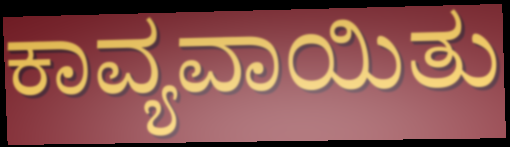
ಕಾವ್ಯವಾಯಿತು